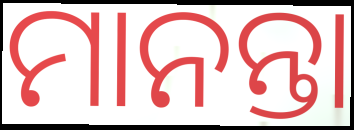
ମାନନ୍ତା